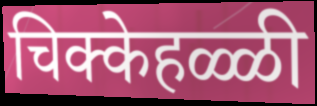
चिक्केहळ्ळी